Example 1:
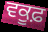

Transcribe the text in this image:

ਵਕੂਫ਼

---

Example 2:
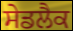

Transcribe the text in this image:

ਸੇਡਲੈਕ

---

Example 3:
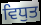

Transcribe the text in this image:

ਵਿਧੁਤ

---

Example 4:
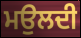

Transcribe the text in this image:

ਮਉਲਦੀ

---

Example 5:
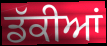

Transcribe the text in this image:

ਡੱਕੀਆਂ